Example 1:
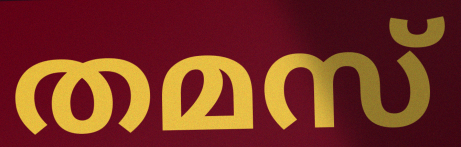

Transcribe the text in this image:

തമസ്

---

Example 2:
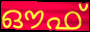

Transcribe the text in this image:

ഔഫ്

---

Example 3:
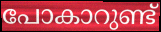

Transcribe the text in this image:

പോകാറുണ്ട്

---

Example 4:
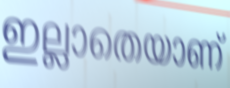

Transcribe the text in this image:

ഇല്ലാതെയാണ്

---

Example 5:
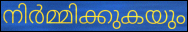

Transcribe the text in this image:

നിർമ്മിക്കുകയും